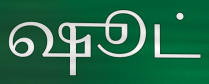
ஷூட்